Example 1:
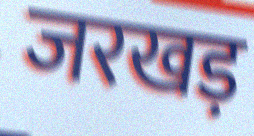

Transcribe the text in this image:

जरखड़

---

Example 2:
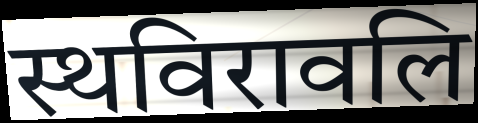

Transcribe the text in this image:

स्थविरावलि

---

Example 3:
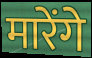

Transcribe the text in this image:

मारेंगे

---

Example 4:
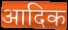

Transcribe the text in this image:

आदिक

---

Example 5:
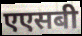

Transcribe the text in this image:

एएसबी